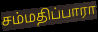
சம்மதிப்பாரா